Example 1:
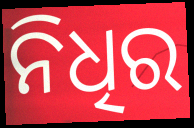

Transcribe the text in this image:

ନିଧିର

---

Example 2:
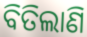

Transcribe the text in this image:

ବିତିଲାଣି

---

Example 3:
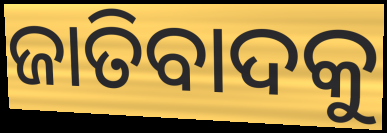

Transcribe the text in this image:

ଜାତିବାଦକୁ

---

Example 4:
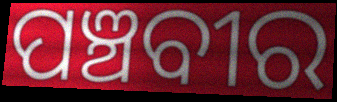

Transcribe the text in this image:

ପଞ୍ଚବୀର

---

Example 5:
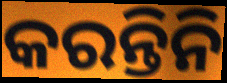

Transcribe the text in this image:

କରନ୍ତିନି